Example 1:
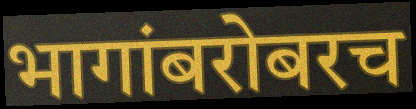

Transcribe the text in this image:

भागांबरोबरच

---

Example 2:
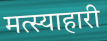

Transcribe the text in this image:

मत्स्याहारी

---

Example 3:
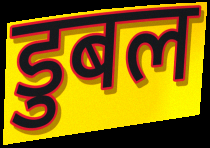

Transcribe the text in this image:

डुबल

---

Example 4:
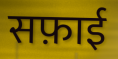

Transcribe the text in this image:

सफ़ाई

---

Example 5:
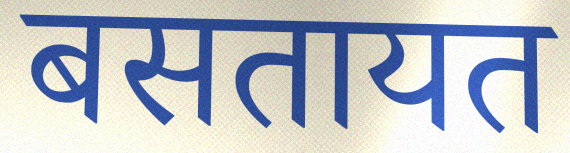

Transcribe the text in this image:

बसतायत